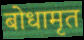
बोधामृत